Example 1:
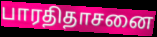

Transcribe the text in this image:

பாரதிதாசனை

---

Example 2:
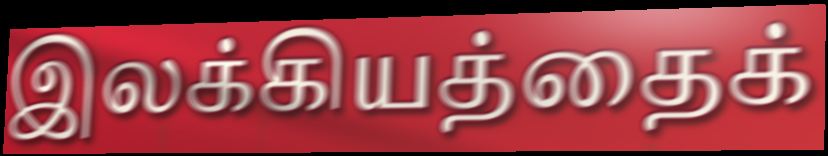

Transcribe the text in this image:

இலக்கியத்தைக்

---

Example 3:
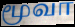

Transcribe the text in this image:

மூவா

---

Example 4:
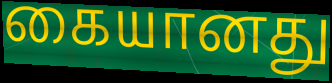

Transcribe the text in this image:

கையானது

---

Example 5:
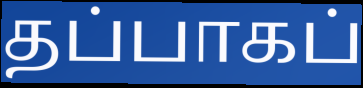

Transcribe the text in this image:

தப்பாகப்